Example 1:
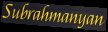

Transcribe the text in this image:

Subrahmanyan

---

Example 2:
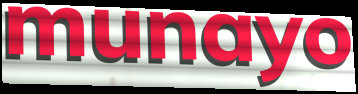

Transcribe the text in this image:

munayo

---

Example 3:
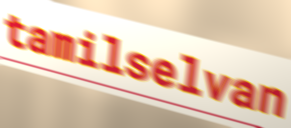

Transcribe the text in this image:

tamilselvan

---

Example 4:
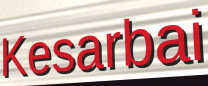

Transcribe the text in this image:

Kesarbai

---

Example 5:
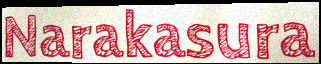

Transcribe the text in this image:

Narakasura